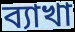
ব্যাখা